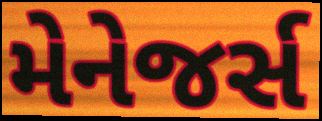
મેનેજર્સ